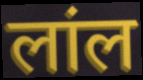
लांल